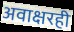
अवाक्षरही